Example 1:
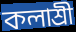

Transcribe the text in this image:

কলাশ্রী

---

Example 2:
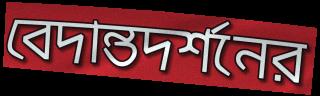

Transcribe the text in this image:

বেদান্তদর্শনের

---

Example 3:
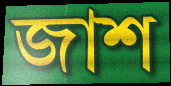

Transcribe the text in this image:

জাশ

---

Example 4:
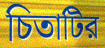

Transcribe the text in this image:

চিতাটির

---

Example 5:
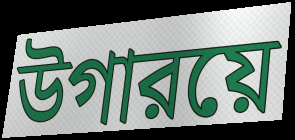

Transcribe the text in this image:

উগারয়ে